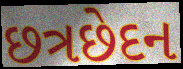
છત્રછેદન